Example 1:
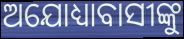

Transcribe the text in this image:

ଅଯୋଧ୍ୟାବାସୀଙ୍କୁ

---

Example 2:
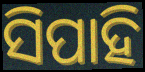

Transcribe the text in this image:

ସିପାହି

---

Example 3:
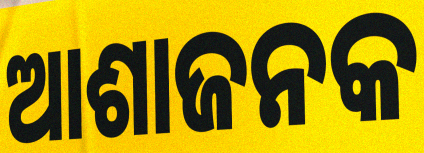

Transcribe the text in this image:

ଆଶାଜନକ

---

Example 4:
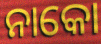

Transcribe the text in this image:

ନାକୋ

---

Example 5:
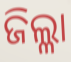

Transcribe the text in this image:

ଜିଲ୍ଳା